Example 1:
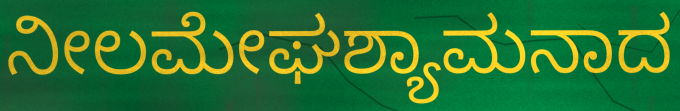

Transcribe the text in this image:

ನೀಲಮೇಘಶ್ಯಾಮನಾದ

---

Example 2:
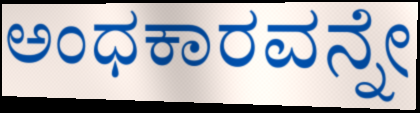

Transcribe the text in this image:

ಅಂಧಕಾರವನ್ನೇ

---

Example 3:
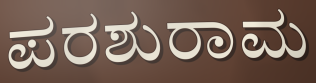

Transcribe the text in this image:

ಪರಶುರಾಮ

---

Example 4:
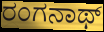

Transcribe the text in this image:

ರಂಗನಾಥ್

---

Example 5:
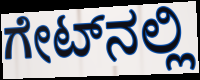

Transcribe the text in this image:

ಗೇಟ್‌ನಲ್ಲಿ